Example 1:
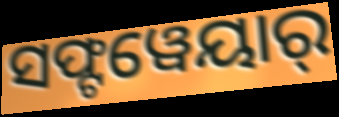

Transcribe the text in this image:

ସଫ୍ଟୱେୟାର୍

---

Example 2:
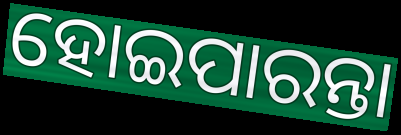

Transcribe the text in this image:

ହୋଇପାରନ୍ତା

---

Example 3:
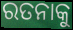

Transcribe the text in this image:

ରତନାକୁ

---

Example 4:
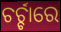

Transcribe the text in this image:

ଚର୍ଚ୍ଚାରେ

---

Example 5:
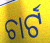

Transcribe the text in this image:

ଚାର୍ଟ